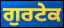
ਗੁਰਟੇਕ